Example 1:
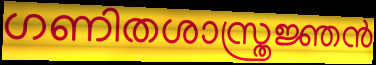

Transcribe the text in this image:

ഗണിതശാസ്ത്രജ്ഞൻ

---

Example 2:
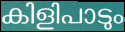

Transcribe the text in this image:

കിളിപാടും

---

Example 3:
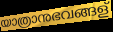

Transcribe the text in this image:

യാത്രാനുഭവങ്ങള്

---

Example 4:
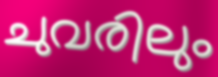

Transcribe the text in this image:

ചുവരിലും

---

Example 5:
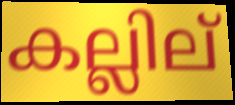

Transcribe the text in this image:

കല്ലില്